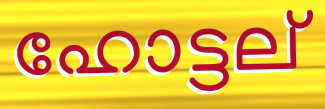
ഹോട്ടല്